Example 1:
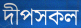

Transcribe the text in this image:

দীপসকল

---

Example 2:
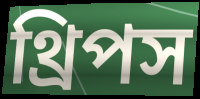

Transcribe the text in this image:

থ্রিপস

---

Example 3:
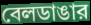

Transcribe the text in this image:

বেলডাঙার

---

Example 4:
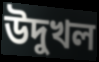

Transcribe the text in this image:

উদুখল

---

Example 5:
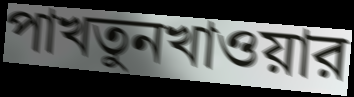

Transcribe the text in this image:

পাখতুনখাওয়ার